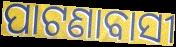
ପାଟଣାବାସୀ